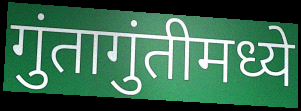
गुंतागुंतीमध्ये